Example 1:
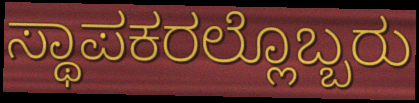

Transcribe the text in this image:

ಸ್ಥಾಪಕರಲ್ಲೊಬ್ಬರು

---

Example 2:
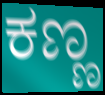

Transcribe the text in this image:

ಕಣ್ಣ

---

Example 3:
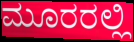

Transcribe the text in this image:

ಮೂರರಲ್ಲಿ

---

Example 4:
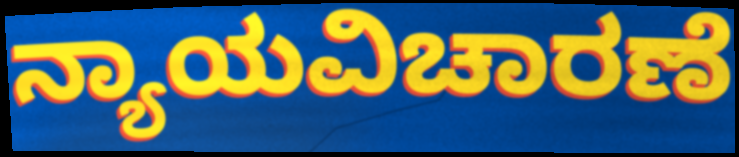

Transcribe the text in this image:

ನ್ಯಾಯವಿಚಾರಣೆ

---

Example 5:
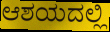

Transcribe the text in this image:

ಆಶಯದಲ್ಲಿ